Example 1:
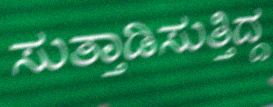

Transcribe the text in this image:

ಸುತ್ತಾಡಿಸುತ್ತಿದ್ದ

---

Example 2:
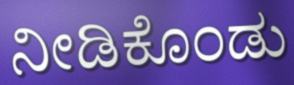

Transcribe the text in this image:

ನೀಡಿಕೊಂಡು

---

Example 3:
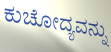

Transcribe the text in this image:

ಕುಚೋದ್ಯವನ್ನು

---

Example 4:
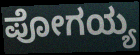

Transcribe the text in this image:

ಪೋಗಯ್ಯ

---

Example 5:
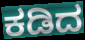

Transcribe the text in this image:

ಕಡಿದ